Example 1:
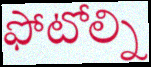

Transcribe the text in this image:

ఫోటోల్ని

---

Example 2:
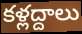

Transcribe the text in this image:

కళ్లద్దాలు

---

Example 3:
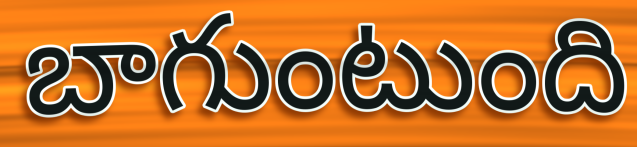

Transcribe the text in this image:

బాగుంటుంది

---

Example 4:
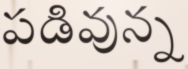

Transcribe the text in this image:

పడివున్న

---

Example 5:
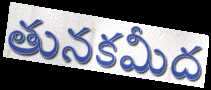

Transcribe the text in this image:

తునకమీద